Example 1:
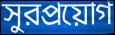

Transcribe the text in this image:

সুরপ্রয়োগ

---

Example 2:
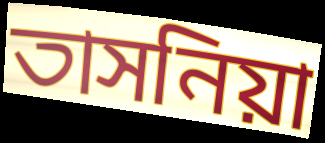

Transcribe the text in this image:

তাসনিয়া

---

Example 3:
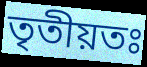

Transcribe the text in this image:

তৃতীয়তঃ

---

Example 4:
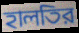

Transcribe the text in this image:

হালতির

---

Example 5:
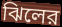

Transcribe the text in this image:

ঝিলের